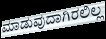
ಮಾಡುವುದಾಗಿರಲಿಲ್ಲ